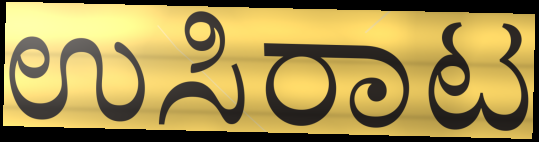
ಉಸಿರಾಟ